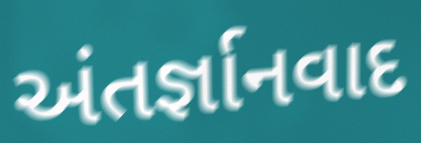
અંતર્જ્ઞાનવાદ